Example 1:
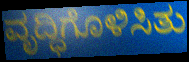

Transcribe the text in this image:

ವೃದ್ಧಿಗೊಳಿಸಿತು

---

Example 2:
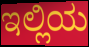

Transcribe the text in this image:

ಇಲ್ಲಿಯ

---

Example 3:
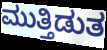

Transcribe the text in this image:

ಮುತ್ತಿಡುತ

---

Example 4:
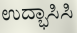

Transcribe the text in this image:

ಉದ್ಭಾಸಿಸಿ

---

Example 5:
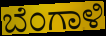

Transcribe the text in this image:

ಬೆಂಗಾಳಿ